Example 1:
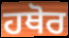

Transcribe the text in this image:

ਹਥੋਰ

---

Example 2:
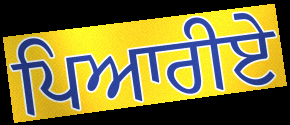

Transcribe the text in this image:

ਪਿਆਰੀਏ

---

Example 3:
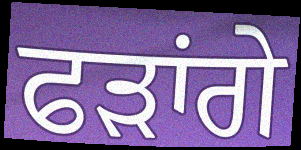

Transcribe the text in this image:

ਫੜਾਂਗੇ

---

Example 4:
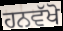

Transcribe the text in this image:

ਹਨਵੱਖੋ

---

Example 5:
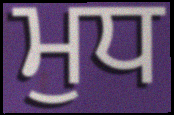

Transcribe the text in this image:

ਮੁਧ